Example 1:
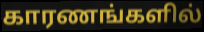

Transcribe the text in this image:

காரணங்களில்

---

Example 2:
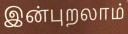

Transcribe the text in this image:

இன்புறலாம்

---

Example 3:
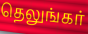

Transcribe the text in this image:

தெலுங்கர்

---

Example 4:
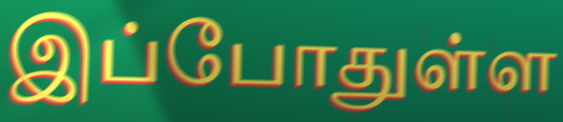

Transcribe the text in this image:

இப்போதுள்ள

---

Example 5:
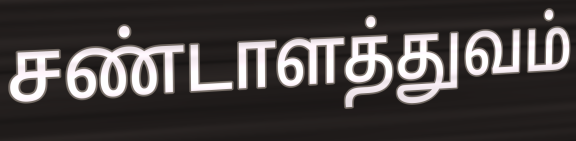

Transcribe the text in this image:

சண்டாளத்துவம்